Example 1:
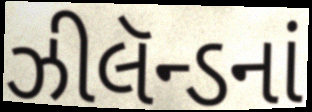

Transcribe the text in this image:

ઝીલૅન્ડનાં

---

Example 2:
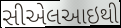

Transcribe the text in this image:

સીએલઆઇથી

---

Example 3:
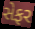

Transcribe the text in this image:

સેફર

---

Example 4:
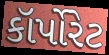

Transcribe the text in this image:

કૉર્પોરેટ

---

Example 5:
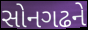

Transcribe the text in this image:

સોનગઢને